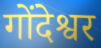
गोंदेश्वर